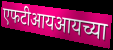
एफटीआयआयच्या